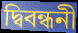
দ্বিবন্ধনী